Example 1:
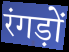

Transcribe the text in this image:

रंगड़ों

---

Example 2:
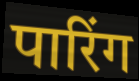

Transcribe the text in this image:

पारिंग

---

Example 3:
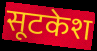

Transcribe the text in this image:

सूटकेश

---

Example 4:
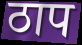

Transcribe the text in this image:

ठाप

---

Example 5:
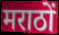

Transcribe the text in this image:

मराठों